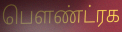
பௌண்ட்ரக